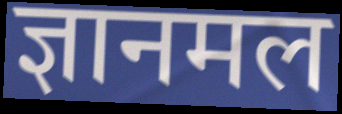
ज्ञानमल